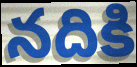
నదికి